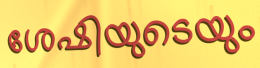
ശേഷിയുടെയും